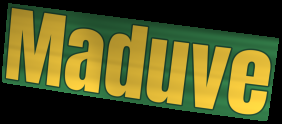
Maduve